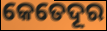
କେତେଦୂର